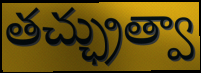
తచ్ఛ్రుత్వా